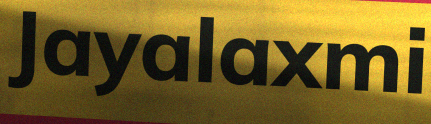
Jayalaxmi